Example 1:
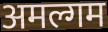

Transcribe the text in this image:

अमल्गम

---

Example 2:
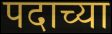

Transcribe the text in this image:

पदाच्या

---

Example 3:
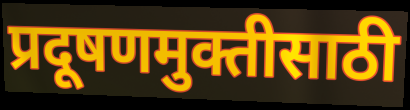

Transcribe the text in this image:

प्रदूषणमुक्तीसाठी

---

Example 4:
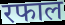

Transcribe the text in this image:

रफाल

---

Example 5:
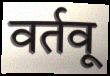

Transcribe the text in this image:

वर्तवू